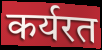
कर्यरत